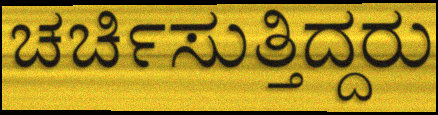
ಚರ್ಚಿಸುತ್ತಿದ್ದರು